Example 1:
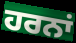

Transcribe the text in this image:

ਹਰਨਾਂ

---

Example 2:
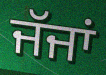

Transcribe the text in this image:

ਜੱਜਾਂ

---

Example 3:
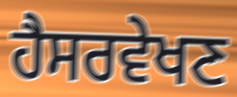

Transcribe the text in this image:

ਹੈਸਰਵੇਖਣ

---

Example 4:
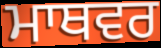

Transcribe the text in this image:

ਮਾਥਵਰ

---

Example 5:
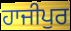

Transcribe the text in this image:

ਹਾਜੀਪੁਰ